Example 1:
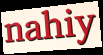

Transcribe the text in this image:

nahiy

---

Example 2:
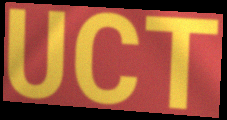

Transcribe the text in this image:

UCT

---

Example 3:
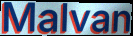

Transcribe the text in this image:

Malvan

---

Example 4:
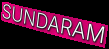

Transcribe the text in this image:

SUNDARAM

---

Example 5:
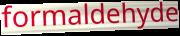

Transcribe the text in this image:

formaldehyde